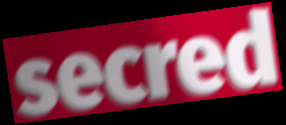
secred